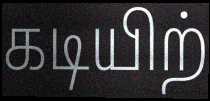
கடியிற்